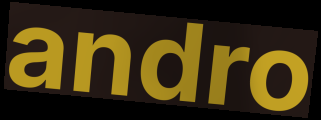
andro